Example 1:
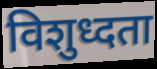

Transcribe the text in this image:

विशुध्दता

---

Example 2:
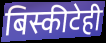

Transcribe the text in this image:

बिस्कीटेही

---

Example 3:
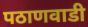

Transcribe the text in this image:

पठाणवाडी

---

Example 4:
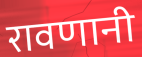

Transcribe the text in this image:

रावणानी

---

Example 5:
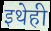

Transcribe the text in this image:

इथेही